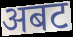
अबट